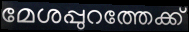
മേശപ്പുറത്തേക്ക്